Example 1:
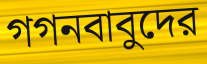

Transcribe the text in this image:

গগনবাবুদের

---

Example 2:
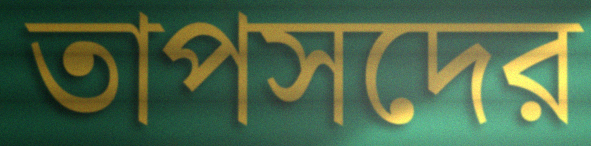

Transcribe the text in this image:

তাপসদের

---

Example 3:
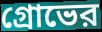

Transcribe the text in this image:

গ্রোভের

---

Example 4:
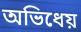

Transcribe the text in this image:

অভিধেয়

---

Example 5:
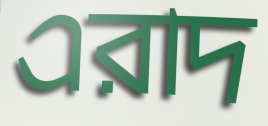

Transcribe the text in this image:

এরাদ